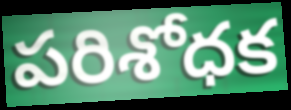
పరిశోధక